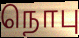
நொபு